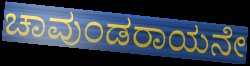
ಚಾವುಂಡರಾಯನೇ